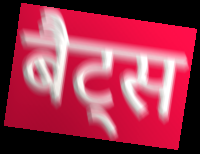
बैट्स